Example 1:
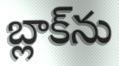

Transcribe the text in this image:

బ్లాక్‌ను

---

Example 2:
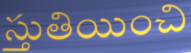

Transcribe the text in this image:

స్తుతియించి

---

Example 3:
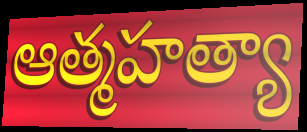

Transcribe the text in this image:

ఆత్మహత్యా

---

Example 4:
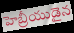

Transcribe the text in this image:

హెబ్రీయుడైన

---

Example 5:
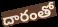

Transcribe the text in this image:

దారంతో